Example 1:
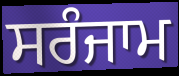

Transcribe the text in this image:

ਸਰੰਜਾਮ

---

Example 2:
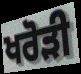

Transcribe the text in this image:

ਖਰੋੜੀ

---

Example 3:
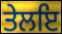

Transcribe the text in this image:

ਤੇਲਇ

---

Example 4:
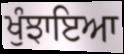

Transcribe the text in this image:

ਖੁੰਝਾਇਆ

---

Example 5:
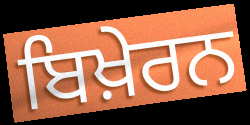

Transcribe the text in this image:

ਬਿਖ਼ੇਰਨ